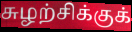
சுழற்சிக்குக்